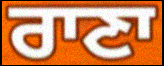
ਰਾਣਾ